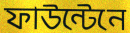
ফাউন্টেনে